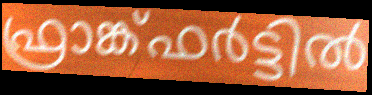
ഫ്രാങ്ക്ഫർട്ടിൽ